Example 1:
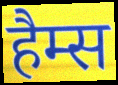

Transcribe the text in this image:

हैम्स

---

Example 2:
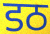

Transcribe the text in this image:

डठ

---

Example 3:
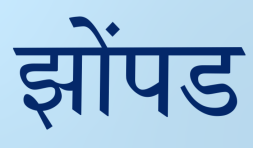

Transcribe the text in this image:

झोंपड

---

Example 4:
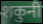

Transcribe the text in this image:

शकुनी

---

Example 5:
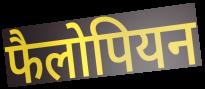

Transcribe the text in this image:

फैलोपियन